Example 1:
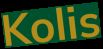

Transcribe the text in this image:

Kolis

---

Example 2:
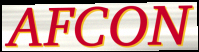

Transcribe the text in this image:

AFCON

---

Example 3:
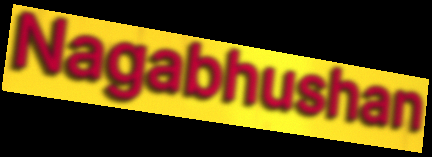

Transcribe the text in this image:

Nagabhushan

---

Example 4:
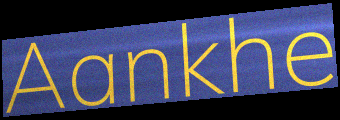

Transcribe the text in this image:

Aankhe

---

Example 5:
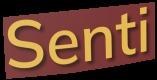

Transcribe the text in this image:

Senti